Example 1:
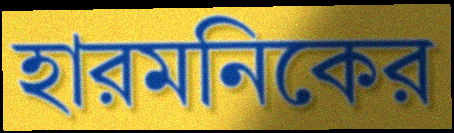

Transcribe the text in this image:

হারমনিকের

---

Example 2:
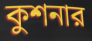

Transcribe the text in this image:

কুশনার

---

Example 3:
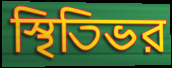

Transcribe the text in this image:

স্থিতিভর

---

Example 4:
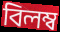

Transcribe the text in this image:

বিলম্ব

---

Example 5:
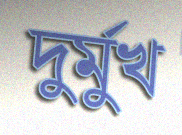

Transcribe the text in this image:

দুর্মুখ